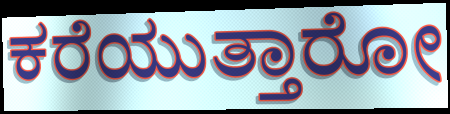
ಕರೆಯುತ್ತಾರೋ